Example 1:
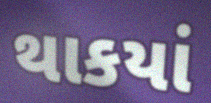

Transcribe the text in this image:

થાકયાં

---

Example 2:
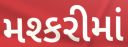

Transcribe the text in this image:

મશ્કરીમાં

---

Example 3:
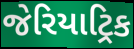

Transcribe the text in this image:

જેરિયાટ્રિક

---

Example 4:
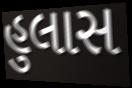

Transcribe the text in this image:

હુલાસ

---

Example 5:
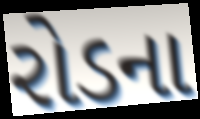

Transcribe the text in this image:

રોડના